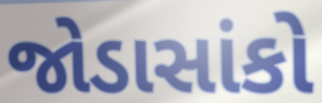
જોડાસાંકો